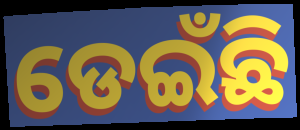
ଡେଇଁଛି